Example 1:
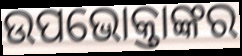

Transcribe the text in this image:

ଉପଭୋକ୍ତାଙ୍କର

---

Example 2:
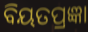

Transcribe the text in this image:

ବିୟତପ୍ରଜ୍ଞା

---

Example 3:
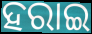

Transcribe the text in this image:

ହରାଇ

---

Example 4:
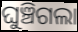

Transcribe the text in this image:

ଘୁଞ୍ଚିଗଲା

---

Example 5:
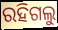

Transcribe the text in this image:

ରହିଗଲୁ